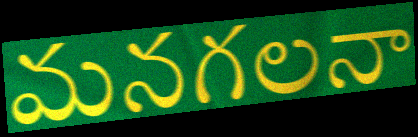
మనగలనా